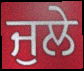
ਜੁਲੇ